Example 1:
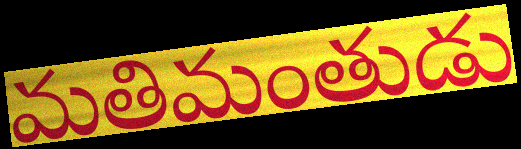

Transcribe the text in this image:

మతిమంతుడు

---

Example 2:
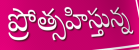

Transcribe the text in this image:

ప్రోత్సహిస్తున్న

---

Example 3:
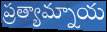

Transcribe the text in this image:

ప్రత్యామ్నాయ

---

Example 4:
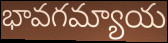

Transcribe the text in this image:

భావగమ్యాయ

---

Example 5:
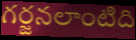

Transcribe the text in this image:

గర్జనలాంటిది